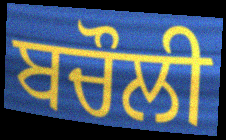
ਬਚੌਲੀ